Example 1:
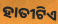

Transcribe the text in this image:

ହାତୀଟିଏ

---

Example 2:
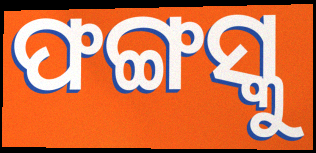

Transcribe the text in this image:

ଫଙ୍ଗସ୍କୁ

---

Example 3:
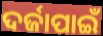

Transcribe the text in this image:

ଦର୍ଜାପାଇଁ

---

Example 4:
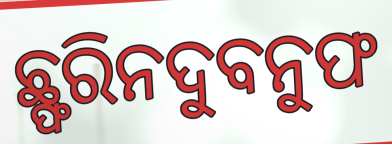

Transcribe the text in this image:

ଛ୍ଫରିନଦୁବନୁଫ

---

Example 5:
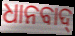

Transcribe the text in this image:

ଧାନବାଦ୍